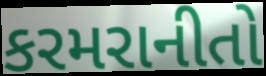
કરમરાનીતો